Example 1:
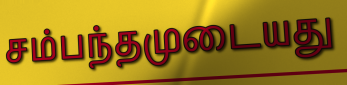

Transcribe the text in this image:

சம்பந்தமுடையது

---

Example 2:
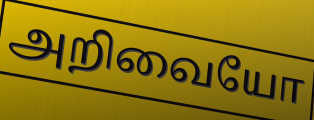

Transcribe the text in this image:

அறிவையோ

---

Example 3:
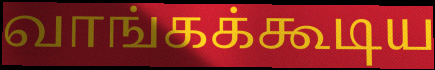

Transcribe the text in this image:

வாங்கக்கூடிய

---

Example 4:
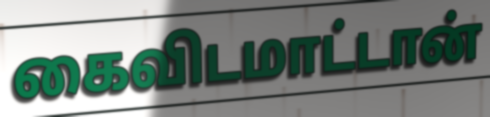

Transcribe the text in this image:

கைவிடமாட்டான்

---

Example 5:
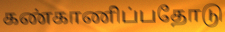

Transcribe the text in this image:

கண்காணிப்பதோடு